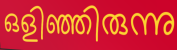
ഒളിഞ്ഞിരുന്നു